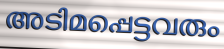
അടിമപ്പെട്ടവരും